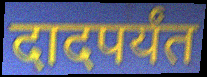
दादपर्यंत